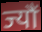
ज्यौं